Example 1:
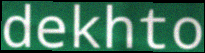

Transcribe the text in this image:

dekhto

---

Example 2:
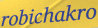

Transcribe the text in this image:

robichakro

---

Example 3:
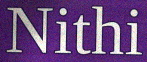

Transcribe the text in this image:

Nithi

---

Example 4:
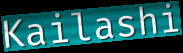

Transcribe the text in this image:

Kailashi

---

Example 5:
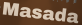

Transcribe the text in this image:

Masada